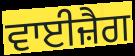
ਵਾਈਜ਼ੈਗ